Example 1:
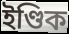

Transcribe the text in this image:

ইণ্ডিক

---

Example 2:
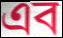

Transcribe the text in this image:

এব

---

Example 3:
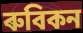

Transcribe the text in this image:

ৰুবিকন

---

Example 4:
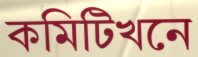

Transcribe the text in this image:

কমিটিখনে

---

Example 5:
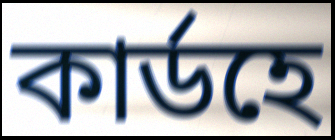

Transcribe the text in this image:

কাৰ্ডহে